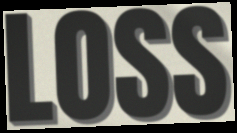
LOSS